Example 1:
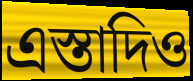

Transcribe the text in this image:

এস্তাদিও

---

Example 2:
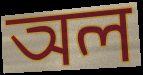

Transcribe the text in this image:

অল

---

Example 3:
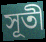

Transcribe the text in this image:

সূতী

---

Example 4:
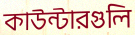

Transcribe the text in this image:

কাউন্টারগুলি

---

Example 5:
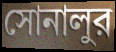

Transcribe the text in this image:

সোনালুর